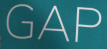
GAP